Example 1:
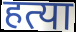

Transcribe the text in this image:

हत्‍या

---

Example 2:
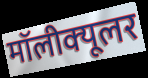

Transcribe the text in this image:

मॉलीक्यूलर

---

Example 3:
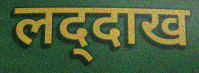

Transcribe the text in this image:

लद्‌दाख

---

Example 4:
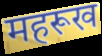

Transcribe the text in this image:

महरूख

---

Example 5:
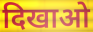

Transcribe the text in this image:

दिखाओ